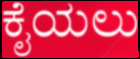
ಕೈಯಲು